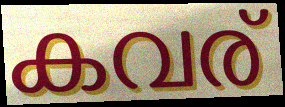
കവര്